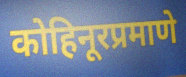
कोहिनूरप्रमाणे